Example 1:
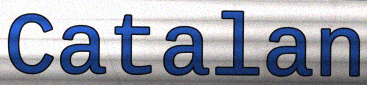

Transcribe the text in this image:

Catalan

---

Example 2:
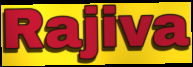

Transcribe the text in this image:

Rajiva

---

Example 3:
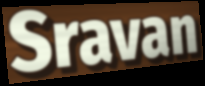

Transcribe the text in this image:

Sravan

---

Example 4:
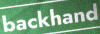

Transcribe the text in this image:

backhand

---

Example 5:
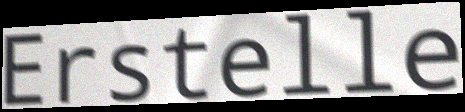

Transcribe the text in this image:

Erstelle